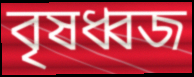
বৃষধ্বজ